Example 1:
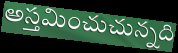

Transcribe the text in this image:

అస్తమించుచున్నది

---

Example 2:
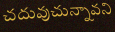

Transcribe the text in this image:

చదువుచున్నావని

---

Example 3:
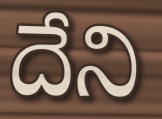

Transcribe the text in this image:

దేని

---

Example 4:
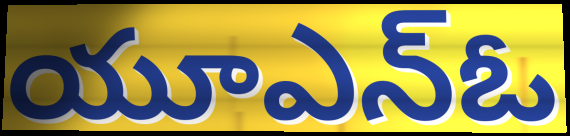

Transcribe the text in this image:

యూఎన్ఓ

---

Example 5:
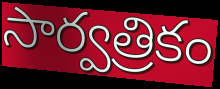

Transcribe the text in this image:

సార్వత్రికం